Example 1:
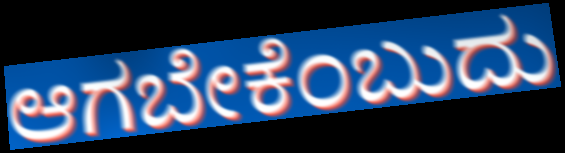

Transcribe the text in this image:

ಆಗಬೇಕೆಂಬುದು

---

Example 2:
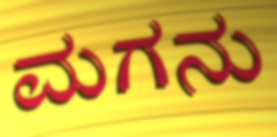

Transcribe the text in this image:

ಮಗನು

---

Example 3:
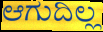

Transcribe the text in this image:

ಆಗುದಿಲ್ಲ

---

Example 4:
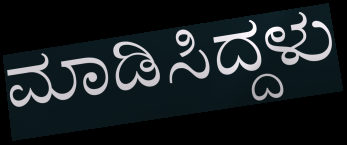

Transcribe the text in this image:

ಮಾಡಿಸಿದ್ದಳು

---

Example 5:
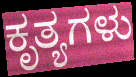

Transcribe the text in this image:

ಕೃತ್ಯಗಳು